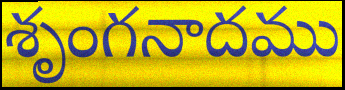
శృంగనాదము